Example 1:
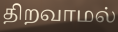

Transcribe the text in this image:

திறவாமல்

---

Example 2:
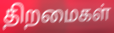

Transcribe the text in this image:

திறமைகள்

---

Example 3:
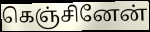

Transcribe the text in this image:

கெஞ்சினேன்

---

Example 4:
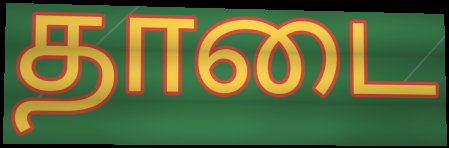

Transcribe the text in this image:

தாடை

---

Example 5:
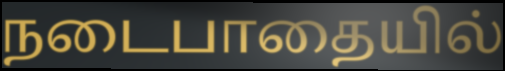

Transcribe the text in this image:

நடைபாதையில்